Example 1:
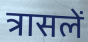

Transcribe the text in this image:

त्रासलें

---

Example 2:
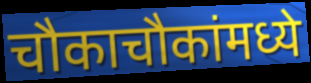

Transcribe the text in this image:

चौकाचौकांमध्ये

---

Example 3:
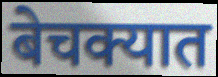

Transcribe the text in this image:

बेचक्यात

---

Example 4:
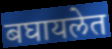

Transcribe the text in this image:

बघायलेत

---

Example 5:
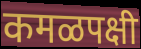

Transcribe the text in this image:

कमळपक्षी